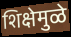
शिक्षेमुळे